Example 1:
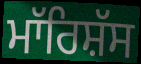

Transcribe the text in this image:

ਮਾੱਰਿਸ਼ੱਸ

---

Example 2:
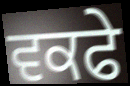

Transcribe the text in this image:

ਵਕਫੇ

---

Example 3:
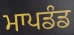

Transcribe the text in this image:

ਮਾਪਡੰਡ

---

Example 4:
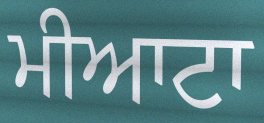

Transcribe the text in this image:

ਮੀਆਟਾ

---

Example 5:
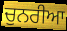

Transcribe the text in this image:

ਚੁਨਰੀਆ